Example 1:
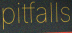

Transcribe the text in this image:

pitfalls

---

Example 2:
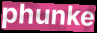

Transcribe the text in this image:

phunke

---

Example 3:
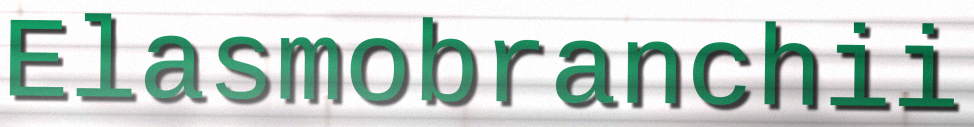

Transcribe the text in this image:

Elasmobranchii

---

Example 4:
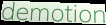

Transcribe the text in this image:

demotion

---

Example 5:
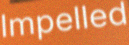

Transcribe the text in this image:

Impelled